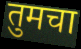
तुमचा